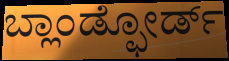
ಬ್ಲಾಂಡ್ಫೋರ್ಡ್